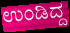
ಉಂಡಿದ್ದ